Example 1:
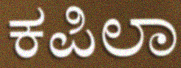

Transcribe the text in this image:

ಕಪಿಲಾ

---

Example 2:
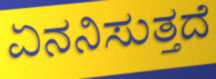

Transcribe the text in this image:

ಏನನಿಸುತ್ತದೆ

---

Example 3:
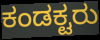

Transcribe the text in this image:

ಕಂಡಕ್ಟರು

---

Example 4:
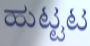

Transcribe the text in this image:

ಹುಟ್ಟಟ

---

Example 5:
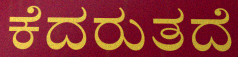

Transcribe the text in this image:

ಕೆದರುತದೆ